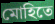
মোহিতে